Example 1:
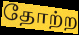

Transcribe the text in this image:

தோற்ற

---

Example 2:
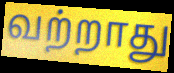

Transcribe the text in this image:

வற்றாது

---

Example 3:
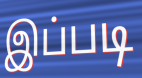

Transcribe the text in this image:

இப்படி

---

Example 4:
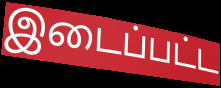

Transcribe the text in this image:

இடைப்பட்ட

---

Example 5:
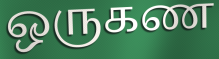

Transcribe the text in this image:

ஒருகண